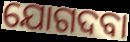
ଯୋଗଦବା